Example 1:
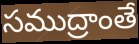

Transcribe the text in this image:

సముద్రాంతే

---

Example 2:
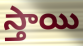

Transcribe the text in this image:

స్తాయి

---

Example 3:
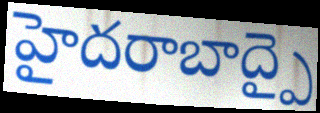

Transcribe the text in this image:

హైదరాబాద్పై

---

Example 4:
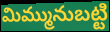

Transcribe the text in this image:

మిమ్మునుబట్టి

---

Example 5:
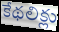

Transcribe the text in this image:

కేథలిక్లు